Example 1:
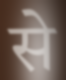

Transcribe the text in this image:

से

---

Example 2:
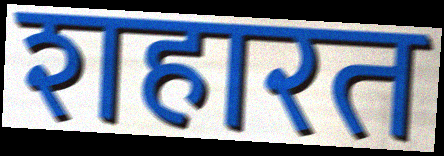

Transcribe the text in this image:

शहारत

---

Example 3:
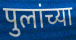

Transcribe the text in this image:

पुलांच्या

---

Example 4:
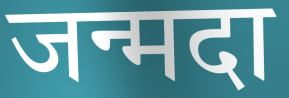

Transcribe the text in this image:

जन्मदा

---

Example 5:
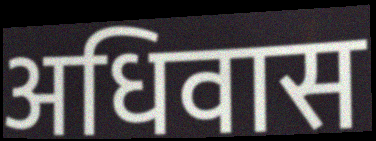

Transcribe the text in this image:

अधिवास